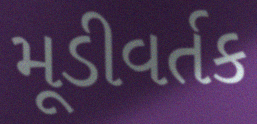
મૂડીવર્તક